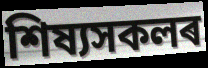
শিষ্যসকলৰ